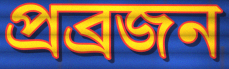
প্রব্রজন